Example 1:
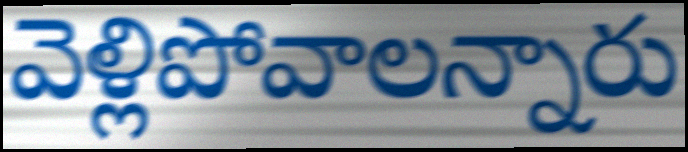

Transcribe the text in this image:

వెళ్లిపోవాలన్నారు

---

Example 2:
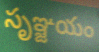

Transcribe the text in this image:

సృఞ్జయం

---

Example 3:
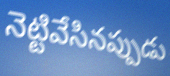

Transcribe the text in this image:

నెట్టివేసినప్పుడు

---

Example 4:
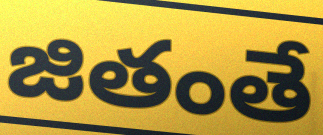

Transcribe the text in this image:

జితంతే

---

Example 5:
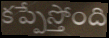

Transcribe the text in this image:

కప్పేస్తోంది